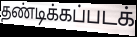
தண்டிக்கப்படக்